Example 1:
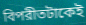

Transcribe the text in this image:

বিপরীতটাকেই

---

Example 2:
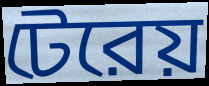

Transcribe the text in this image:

টেরেয়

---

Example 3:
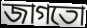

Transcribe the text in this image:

জাগতো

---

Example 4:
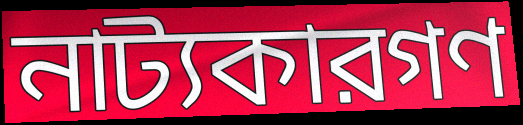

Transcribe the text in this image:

নাট্যকারগণ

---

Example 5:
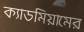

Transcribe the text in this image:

ক্যাডমিয়ামের